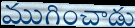
ముగించాడు